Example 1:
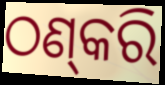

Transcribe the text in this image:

ଠଣ୍‌କରି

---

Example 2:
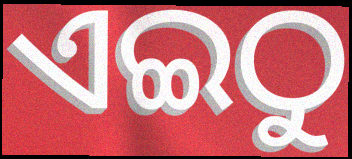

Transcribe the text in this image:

ଏଇଠୁ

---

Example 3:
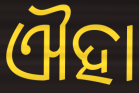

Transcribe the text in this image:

ଐହା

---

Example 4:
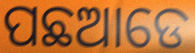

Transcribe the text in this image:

ପଛଆଡେ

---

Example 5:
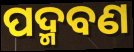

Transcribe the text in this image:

ପଦ୍ମବଣ